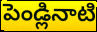
పెండ్లినాటి